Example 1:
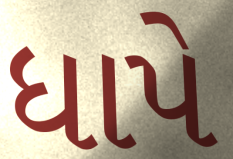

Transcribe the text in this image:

ધાપે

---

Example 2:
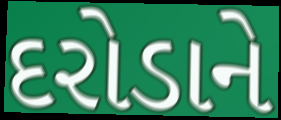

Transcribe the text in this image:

દરોડાને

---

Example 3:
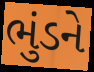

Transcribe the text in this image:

ભુંડને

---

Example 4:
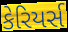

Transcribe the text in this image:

કેરિયર્સ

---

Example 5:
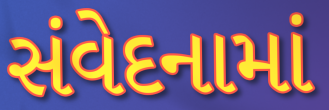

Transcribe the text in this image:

સંવેદનામાં